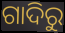
ଗାଦିରୁ